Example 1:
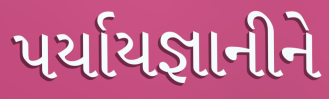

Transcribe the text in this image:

પર્યાયજ્ઞાનીને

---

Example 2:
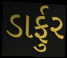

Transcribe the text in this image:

ડાર્ફુર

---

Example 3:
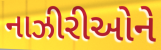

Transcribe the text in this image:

નાઝીરીઓને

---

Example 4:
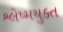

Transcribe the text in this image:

શ્લેષ્મયુક્ત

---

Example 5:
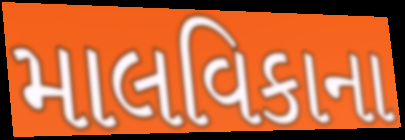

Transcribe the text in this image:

માલવિકાના